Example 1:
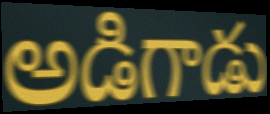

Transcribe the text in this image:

అడిగాడు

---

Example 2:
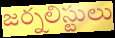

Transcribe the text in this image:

జర్నలిస్టులు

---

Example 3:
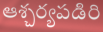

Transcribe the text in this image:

ఆశ్చర్యపడిరి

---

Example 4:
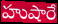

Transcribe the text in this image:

హుషారే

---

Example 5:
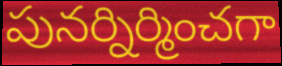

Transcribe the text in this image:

పునర్నిర్మించగా